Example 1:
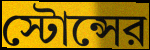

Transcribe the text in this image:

স্টোন্সের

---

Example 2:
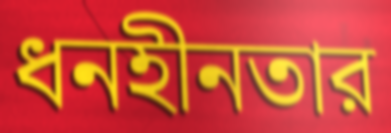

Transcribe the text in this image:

ধনহীনতার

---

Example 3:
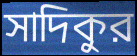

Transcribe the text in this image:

সাদিকুর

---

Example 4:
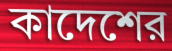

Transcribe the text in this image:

কাদেশের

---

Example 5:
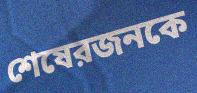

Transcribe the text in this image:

শেষেরজনকে